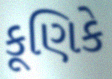
કૂણિકે